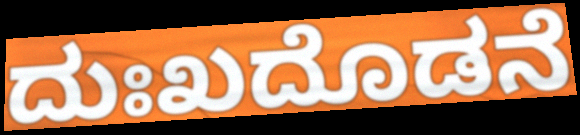
ದುಃಖದೊಡನೆ